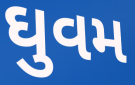
ઘુવમ